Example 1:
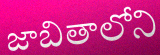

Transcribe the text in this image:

జాబితాలోని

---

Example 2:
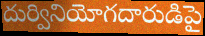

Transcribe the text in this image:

దుర్వినియోగదారుడిపై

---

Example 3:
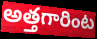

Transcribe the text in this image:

అత్తగారింట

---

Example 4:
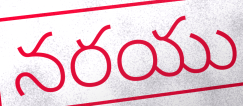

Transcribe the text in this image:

నరయు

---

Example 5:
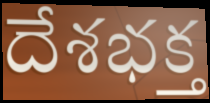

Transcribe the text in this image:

దేశభక్త